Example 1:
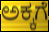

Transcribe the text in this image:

ಅಕ್ಕಗೆ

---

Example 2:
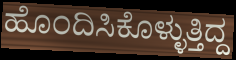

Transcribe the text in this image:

ಹೊಂದಿಸಿಕೊಳ್ಳುತ್ತಿದ್ದ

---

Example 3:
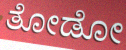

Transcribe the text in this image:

ತೋಡೋ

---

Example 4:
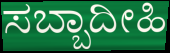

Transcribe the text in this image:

ಸಬ್ಬಾದೀಹಿ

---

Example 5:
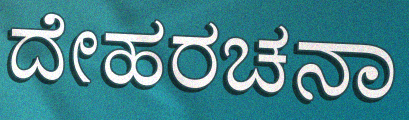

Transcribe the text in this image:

ದೇಹರಚನಾ